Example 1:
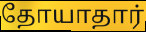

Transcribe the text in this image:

தோயாதார்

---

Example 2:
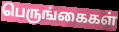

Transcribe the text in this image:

பெருங்கைகள்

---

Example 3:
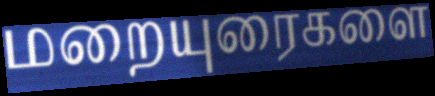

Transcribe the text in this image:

மறையுரைகளை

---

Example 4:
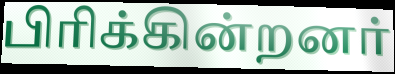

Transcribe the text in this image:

பிரிக்கின்றனர்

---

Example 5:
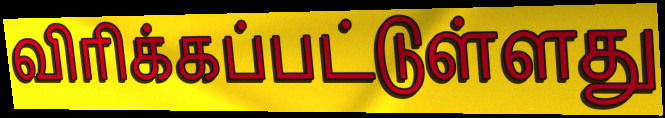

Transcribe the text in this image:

விரிக்கப்பட்டுள்ளது